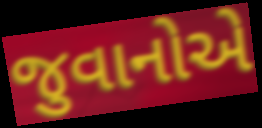
જુવાનોએ